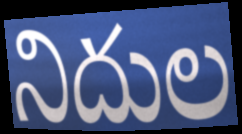
నిదుల